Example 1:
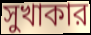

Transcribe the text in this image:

সুখাকার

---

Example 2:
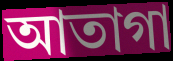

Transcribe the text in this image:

আতাগা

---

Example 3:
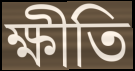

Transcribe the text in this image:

ক্ষীতি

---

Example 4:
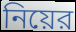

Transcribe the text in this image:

নিয়ের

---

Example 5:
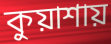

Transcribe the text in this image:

কুয়াশায়